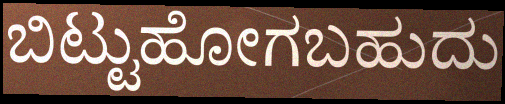
ಬಿಟ್ಟುಹೋಗಬಹುದು